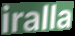
iralla